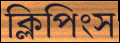
ক্লিপিংস